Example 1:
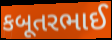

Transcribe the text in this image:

કબૂતરભાઈ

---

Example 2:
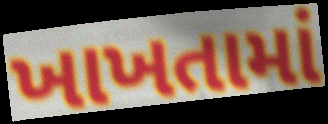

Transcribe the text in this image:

ખાખતામાં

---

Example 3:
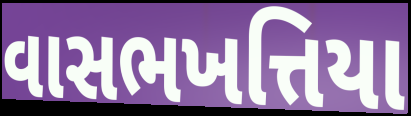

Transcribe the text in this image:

વાસભખત્તિયા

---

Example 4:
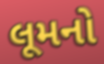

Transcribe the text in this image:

લૂમનો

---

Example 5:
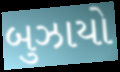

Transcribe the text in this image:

બુઝાયો